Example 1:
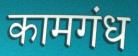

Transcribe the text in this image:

कामगंध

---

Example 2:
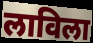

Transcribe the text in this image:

लाविला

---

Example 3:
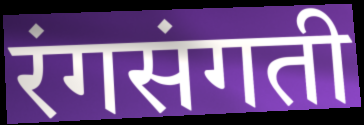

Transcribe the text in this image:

रंगसंगती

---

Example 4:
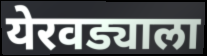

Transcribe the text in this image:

येरवड्याला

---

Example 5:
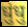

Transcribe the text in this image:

धुंधु